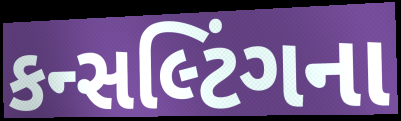
કન્સલ્ટિંગના